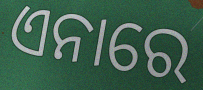
ଏନାରେ